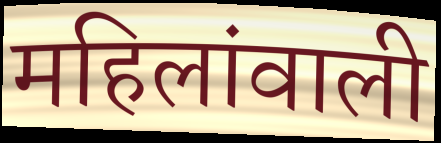
महिलांवाली